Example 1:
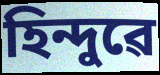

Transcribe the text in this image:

হিন্দুৱে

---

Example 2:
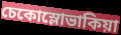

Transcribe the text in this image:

চেকোস্লোভাকিয়া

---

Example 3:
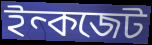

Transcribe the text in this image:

ইন্কজেট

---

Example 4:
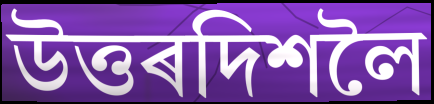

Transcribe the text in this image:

উত্তৰদিশলৈ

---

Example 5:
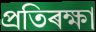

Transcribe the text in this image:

প্ৰতিৰক্ষা